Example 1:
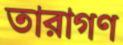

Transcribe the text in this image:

তারাগণ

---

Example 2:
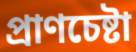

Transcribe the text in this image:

প্রাণচেষ্টা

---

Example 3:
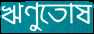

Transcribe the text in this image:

ঋণুতোষ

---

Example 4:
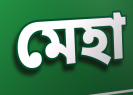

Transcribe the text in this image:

মেহা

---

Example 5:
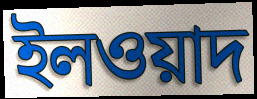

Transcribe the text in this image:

ইলওয়াদ